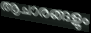
ആചാരങ്ങളും